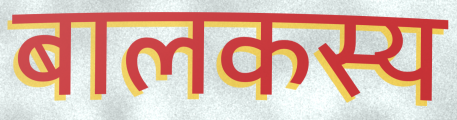
बालकस्य